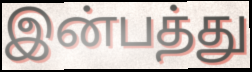
இன்பத்து